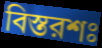
বিস্তরশঃ